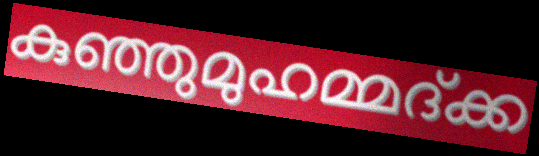
കുഞ്ഞുമുഹമ്മദ്ക്ക